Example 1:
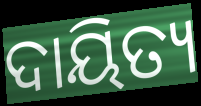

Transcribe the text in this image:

ଦାୟିତ୍ୟ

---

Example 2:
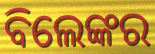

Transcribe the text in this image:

ବିଲେଙ୍କର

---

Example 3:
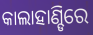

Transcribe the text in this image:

କାଲାହାଣ୍ଡିରେ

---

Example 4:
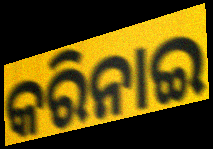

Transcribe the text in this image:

କରିନାଇ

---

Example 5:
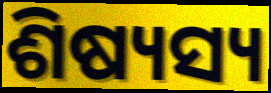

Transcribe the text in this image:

ଶିଷ୍ୟସ୍ୟ